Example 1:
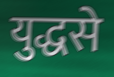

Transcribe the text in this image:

युद्धसे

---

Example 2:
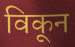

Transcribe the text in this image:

विकून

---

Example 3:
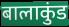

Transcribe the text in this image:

बालाकुंड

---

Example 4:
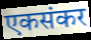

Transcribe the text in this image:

एकसंकर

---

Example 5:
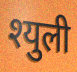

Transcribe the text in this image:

श्युली